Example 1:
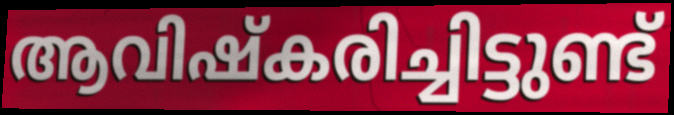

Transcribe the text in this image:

ആവിഷ്കരിച്ചിട്ടുണ്ട്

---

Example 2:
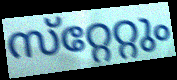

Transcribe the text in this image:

സ്‌റ്റേറ്റും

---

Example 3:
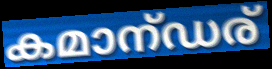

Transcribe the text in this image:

കമാന്ഡര്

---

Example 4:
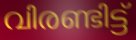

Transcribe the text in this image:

വിരണ്ടിട്ട്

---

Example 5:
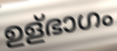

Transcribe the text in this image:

ഉള്ഭാഗം